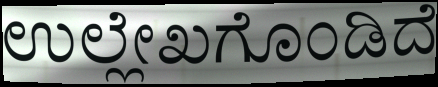
ಉಲ್ಲೇಖಗೊಂಡಿದೆ